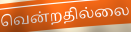
வென்றதில்லை